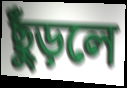
ছুঁড়লে